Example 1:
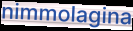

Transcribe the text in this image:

nimmolagina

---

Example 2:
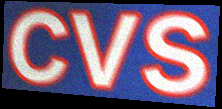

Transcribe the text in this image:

cvs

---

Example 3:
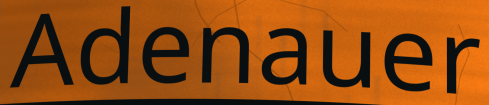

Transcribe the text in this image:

Adenauer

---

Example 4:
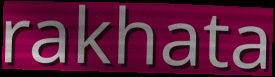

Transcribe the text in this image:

rakhata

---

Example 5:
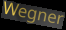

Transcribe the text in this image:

Wegner